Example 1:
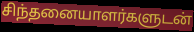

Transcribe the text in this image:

சிந்தனையாளர்களுடன்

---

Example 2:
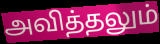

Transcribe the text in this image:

அவித்தலும்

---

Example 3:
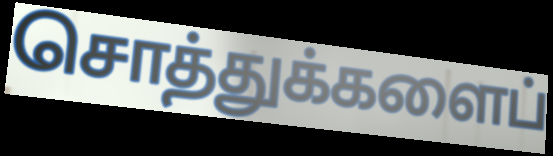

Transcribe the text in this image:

சொத்துக்களைப்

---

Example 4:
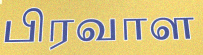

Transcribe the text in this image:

பிரவாள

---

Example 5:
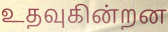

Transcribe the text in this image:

உதவுகின்றன